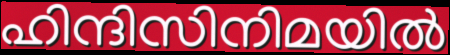
ഹിന്ദിസിനിമയിൽ